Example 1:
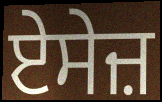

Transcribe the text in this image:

ਏਸੇਜ਼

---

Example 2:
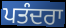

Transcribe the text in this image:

ਪਤੰਦਰਾ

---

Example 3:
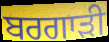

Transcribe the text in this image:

ਬਰਗਾੜੀ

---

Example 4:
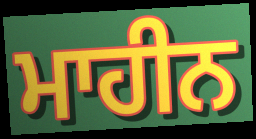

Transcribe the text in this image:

ਮਾਹੀਨ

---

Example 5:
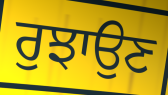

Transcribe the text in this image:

ਰੁਝਾਉਣ